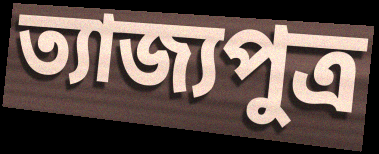
ত্যাজ্যপুত্র